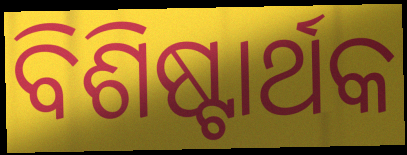
ବିଶିଷ୍ଟାର୍ଥକ